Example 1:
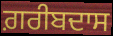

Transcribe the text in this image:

ਗ਼ਰੀਬਦਾਸ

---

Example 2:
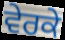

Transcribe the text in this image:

ਵੇਰਕੇ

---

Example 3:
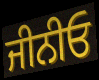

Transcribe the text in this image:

ਜੀਨੀਓ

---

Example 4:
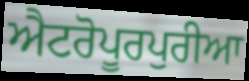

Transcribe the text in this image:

ਐਟਰੋਪੂਰਪੁਰੀਆ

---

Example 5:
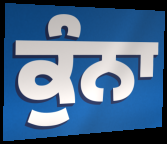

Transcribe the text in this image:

ਕੁੰਨਾ